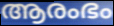
ആരംഭം